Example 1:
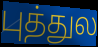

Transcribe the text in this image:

புத்துல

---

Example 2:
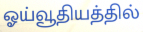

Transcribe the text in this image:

ஓய்வூதியத்தில்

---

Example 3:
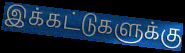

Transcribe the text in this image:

இக்கட்டுகளுக்கு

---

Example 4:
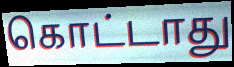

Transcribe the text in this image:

கொட்டாது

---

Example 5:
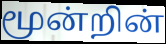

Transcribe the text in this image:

மூன்றின்